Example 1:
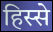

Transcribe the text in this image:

हिस्‍से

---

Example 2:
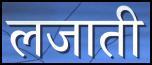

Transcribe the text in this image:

लजाती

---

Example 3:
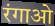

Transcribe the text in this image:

रंगाओ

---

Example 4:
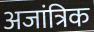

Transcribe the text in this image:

अजांत्रिक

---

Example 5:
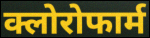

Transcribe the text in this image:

क्लोरोफार्म